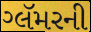
ગ્લૅમરની